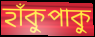
হাঁকুপাকু